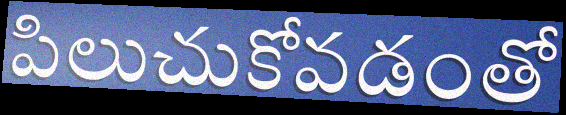
పిలుచుకోవడంతో